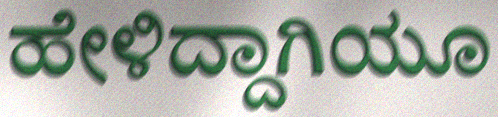
ಹೇಳಿದ್ದಾಗಿಯೂ